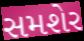
સમશેર